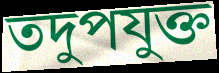
তদুপযুক্ত